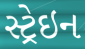
સ્ટ્રેઇન